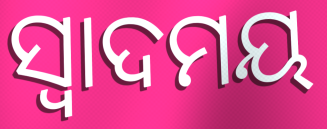
ସ୍ଵାଦମୟ